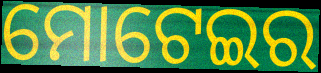
ମୋଟେଇର